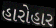
હારોહાર